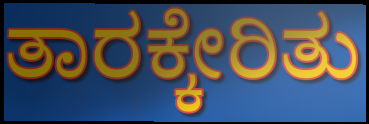
ತಾರಕ್ಕೇರಿತು